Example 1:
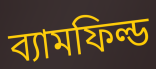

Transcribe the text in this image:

ব্যামফিল্ড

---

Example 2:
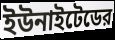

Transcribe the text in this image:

ইউনাইটেডের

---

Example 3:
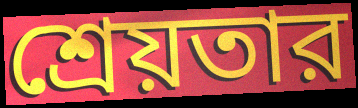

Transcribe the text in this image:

শ্রেয়তার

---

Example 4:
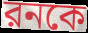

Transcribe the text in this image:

রনকে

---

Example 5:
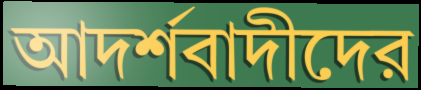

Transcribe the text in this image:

আদর্শবাদীদের